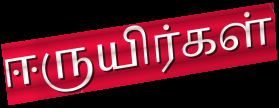
ஈருயிர்கள்